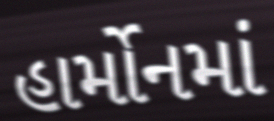
હાર્મોનમાં